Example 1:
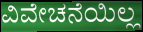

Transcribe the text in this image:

ವಿವೇಚನೆಯಿಲ್ಲ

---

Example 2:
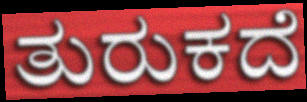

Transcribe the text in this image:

ತುರುಕದೆ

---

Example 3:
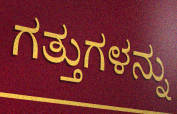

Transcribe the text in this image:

ಗತ್ತುಗಳನ್ನು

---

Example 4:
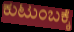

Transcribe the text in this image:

ಕುಟುಂಬಕ್ಕೆ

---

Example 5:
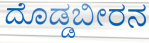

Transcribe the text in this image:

ದೊಡ್ಡಬೀರನ